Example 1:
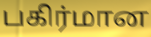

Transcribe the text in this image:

பகிர்மான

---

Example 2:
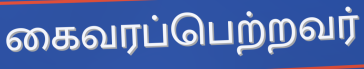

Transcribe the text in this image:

கைவரப்பெற்றவர்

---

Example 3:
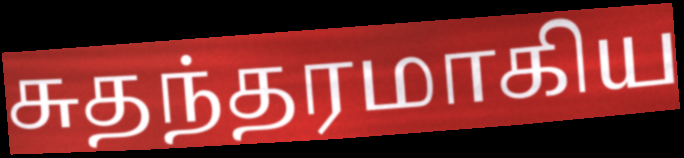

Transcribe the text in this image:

சுதந்தரமாகிய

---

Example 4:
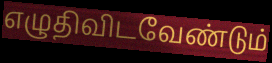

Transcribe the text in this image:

எழுதிவிடவேண்டும்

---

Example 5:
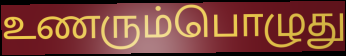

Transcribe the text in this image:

உணரும்பொழுது